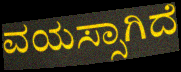
ವಯಸ್ಸಾಗಿದೆ